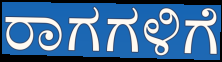
ರಾಗಗಳಿಗೆ